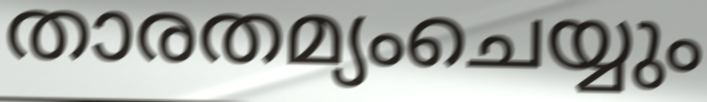
താരതമ്യംചെയ്യും